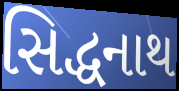
સિદ્ધનાથ